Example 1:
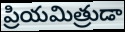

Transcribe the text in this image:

ప్రియమిత్రుడా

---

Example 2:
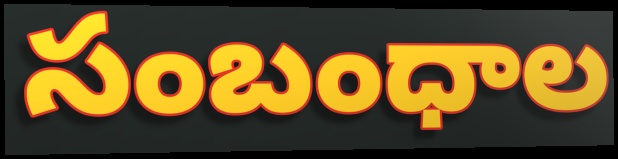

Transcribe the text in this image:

సంబంధాల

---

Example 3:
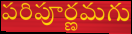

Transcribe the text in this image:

పరిపూర్ణమగు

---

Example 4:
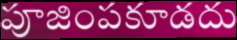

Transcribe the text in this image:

పూజింపకూడదు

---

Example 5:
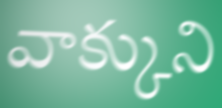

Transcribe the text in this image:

వాక్కుని